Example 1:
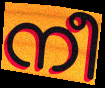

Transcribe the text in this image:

നീ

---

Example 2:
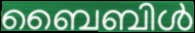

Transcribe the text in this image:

ബൈബിൾ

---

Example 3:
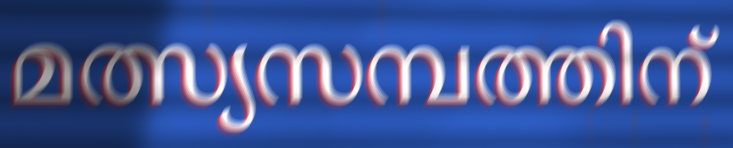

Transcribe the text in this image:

മത്സ്യസമ്പത്തിന്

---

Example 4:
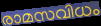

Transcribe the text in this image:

രാമസവിധം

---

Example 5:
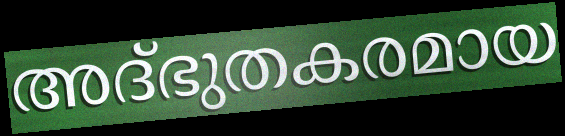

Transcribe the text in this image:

അദ്ഭുതകരമായ